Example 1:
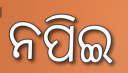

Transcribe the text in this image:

ନପିଇ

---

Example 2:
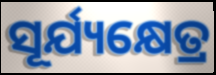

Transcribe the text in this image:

ସୂର୍ଯ୍ୟକ୍ଷେତ୍ର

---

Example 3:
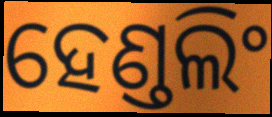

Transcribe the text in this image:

ହେଣ୍ଡଲିଂ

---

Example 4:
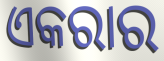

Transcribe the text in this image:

ଏକରାର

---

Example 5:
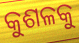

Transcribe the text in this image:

କୁଶଳକୁ